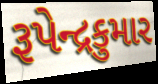
રૂપેન્દ્રકુમાર